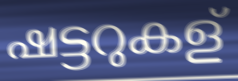
ഷട്ടറുകള്